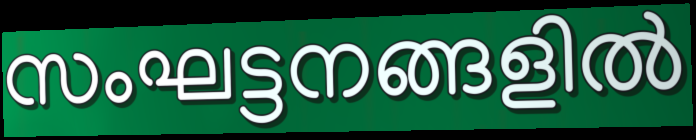
സംഘട്ടനങ്ങളിൽ